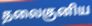
தலைகுனிய